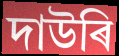
দাউৰি